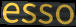
esso